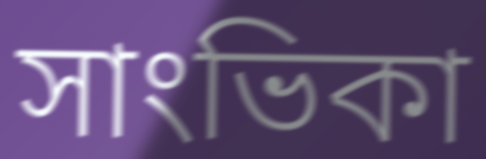
সাংভিকা